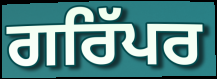
ਗਰਿੱਪਰ